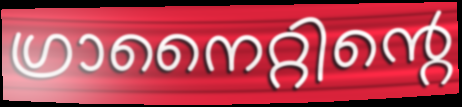
ഗ്രാനൈറ്റിന്റെ